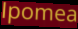
Ipomea